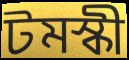
টমস্কী